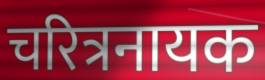
चरित्रनायक